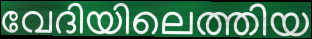
വേദിയിലെത്തിയ